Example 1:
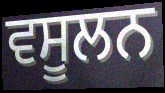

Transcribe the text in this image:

ਵਸੂਲਨ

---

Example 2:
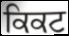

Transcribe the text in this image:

ਕਿਕਟ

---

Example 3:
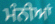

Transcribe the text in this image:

ਮੰਨੀਆਂ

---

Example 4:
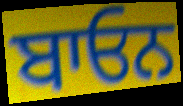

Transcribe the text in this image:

ਬਾਓਨ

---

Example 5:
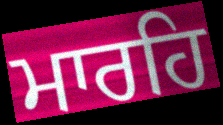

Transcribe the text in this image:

ਮਾਰਹਿ